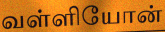
வள்ளியோன்